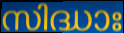
സിദ്ധാഃ